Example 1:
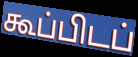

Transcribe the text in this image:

கூப்பிடப்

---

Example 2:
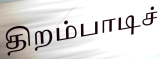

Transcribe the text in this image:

திறம்பாடிச்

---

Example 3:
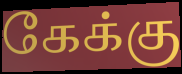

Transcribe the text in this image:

கேக்கு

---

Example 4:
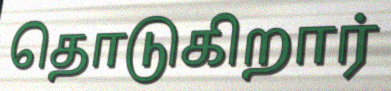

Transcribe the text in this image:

தொடுகிறார்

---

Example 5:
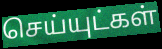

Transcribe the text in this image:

செய்யுட்கள்